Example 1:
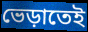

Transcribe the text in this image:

ভেড়াতেই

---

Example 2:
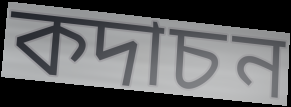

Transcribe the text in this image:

কদাচন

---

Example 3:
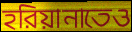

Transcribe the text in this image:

হরিয়ানাতেও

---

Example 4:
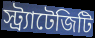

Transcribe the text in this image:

স্ট্র্যাটেজিটি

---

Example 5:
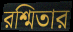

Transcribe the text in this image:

রশ্মিতার